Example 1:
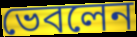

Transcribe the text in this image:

ভেবলেন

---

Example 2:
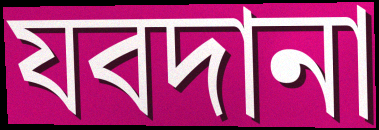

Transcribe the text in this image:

যবদানা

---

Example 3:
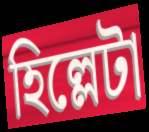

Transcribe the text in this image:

হিল্লেটা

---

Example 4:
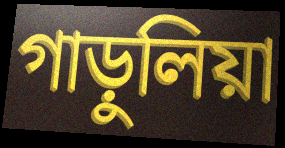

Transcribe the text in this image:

গাড়ুলিয়া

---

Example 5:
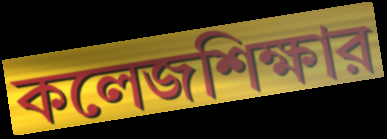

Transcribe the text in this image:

কলেজশিক্ষার